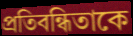
প্রতিবন্ধিতাকে